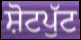
ਸ਼ੋਟਪੁੱਟ